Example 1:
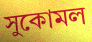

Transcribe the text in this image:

সুকোমল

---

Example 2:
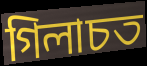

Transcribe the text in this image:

গিলাচত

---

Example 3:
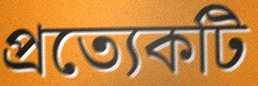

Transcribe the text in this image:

প্ৰত্যেকটি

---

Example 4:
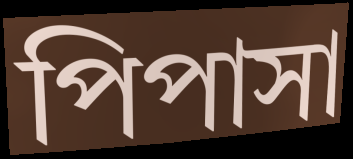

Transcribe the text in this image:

পিপাসা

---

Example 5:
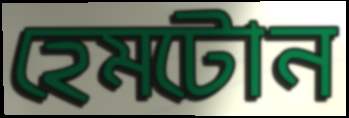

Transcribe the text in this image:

হেমটোন